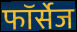
फॉर्सेज